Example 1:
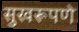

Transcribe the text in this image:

सुखरूपणे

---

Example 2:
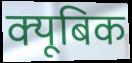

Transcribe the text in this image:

क्यूबिक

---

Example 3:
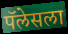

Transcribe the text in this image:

पॅलेसला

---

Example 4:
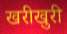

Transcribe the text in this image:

खरीखुरी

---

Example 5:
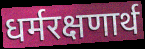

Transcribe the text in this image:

धर्मरक्षणार्थ